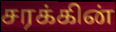
சரக்கின்